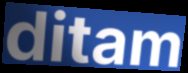
ditam